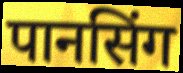
पानसिंग